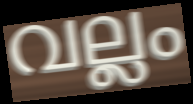
വല്ലം